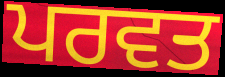
ਪਰਵਤ